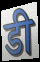
डी